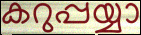
കറുപ്പയ്യാ